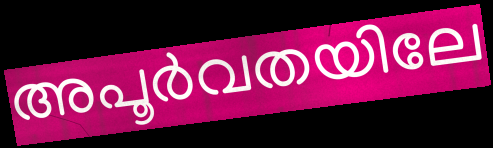
അപൂർവതയിലേ